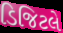
ડિજિટલે